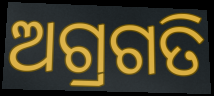
ଅଗ୍ରଗତି